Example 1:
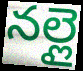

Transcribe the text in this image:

నల్లై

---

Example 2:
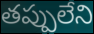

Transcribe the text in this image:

తప్పులేని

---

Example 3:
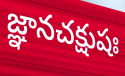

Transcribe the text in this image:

జ్ఞానచక్షుషః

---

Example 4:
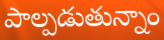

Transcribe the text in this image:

పాల్పడుతున్నాం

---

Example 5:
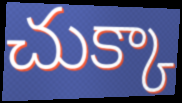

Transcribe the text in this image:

చుక్కా